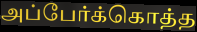
அப்பேர்க்கொத்த